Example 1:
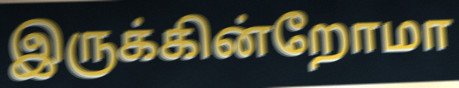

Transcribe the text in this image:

இருக்கின்றோமா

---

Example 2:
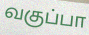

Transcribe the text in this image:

வகுப்பா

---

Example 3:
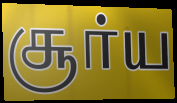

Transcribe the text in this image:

சூர்ய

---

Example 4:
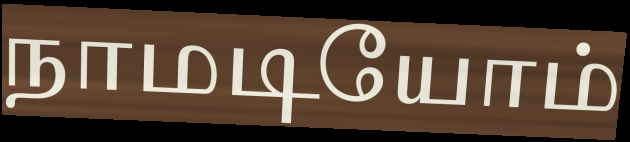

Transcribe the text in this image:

நாமடியோம்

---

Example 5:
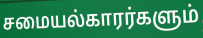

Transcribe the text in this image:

சமையல்காரர்களும்